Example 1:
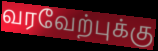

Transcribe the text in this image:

வரவேற்புக்கு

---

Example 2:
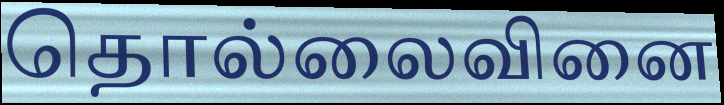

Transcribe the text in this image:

தொல்லைவினை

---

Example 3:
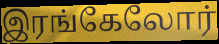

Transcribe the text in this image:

இரங்கேலோர்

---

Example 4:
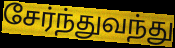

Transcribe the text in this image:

சேர்ந்துவந்து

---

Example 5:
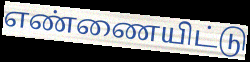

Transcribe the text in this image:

எண்ணையிட்டு